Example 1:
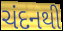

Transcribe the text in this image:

ચંદનથી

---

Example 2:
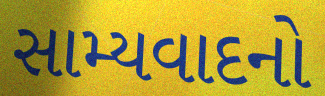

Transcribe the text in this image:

સામ્યવાદનો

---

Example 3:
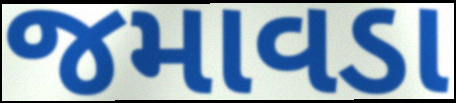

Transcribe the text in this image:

જમાવડા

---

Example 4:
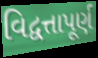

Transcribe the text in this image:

વિદ્વત્તાપૂર્ણ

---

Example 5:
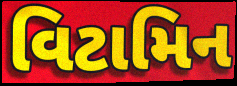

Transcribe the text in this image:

વિટામિન